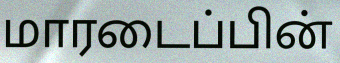
மாரடைப்பின்